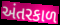
અંતરકાળ